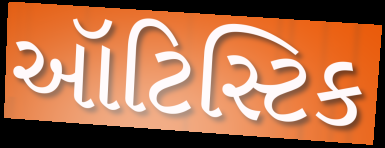
ઑટિસ્ટિક